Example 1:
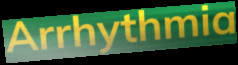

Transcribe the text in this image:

Arrhythmia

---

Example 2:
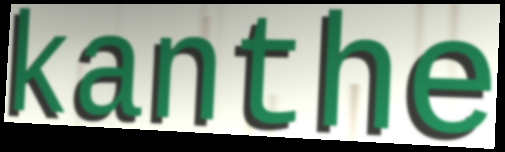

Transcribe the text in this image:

kanthe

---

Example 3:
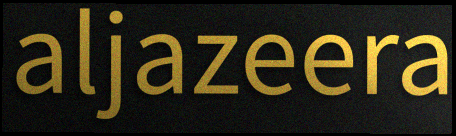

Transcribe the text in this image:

aljazeera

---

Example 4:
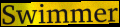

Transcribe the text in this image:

Swimmer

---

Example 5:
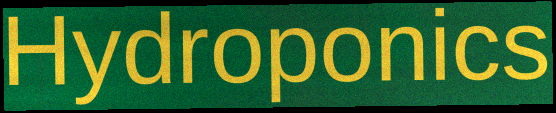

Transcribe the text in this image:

Hydroponics